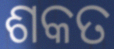
ଶକତ